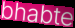
bhabte